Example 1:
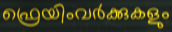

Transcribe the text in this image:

ഫ്രെയിംവർക്കുകളും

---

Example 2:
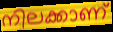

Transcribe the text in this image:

നിലക്കാണ്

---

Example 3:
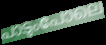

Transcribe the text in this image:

പാടുംപോലെ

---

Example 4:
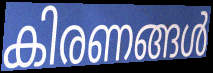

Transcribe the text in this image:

കിരണങ്ങൾ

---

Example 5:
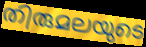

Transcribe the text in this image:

തിരുമലയുടെ